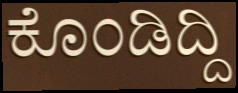
ಕೊಂಡಿದ್ದಿ